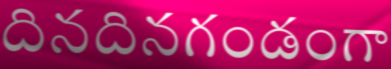
దినదినగండంగా